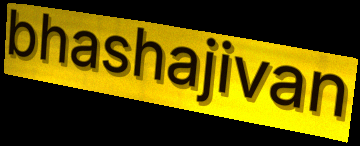
bhashajivan